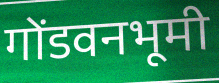
गोंडवनभूमी